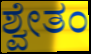
ಶ್ವೇತಂ